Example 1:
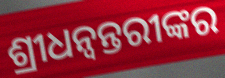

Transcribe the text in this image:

ଶ୍ରୀଧନ୍ୱନ୍ତରୀଙ୍କର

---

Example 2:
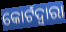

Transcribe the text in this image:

କୋର୍ଟଦ୍ୱାରା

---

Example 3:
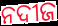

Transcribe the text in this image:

ନଦୀଜ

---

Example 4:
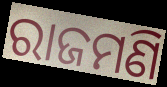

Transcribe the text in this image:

ରାଜମଣି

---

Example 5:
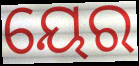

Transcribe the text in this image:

ୟେର